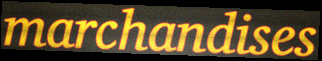
marchandises